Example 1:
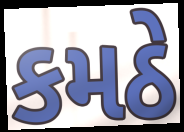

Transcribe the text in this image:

કમઠે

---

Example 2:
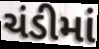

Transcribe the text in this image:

ચંડીમાં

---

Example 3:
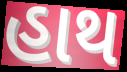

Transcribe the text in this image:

હાથ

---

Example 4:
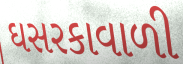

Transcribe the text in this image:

ઘસરકાવાળી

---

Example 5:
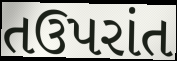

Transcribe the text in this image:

તઉપરાંત